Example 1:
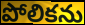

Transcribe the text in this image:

పోలికను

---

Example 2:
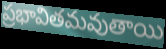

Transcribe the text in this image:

ప్రభావితమవుతాయి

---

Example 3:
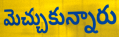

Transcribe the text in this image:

మెచ్చుకున్నారు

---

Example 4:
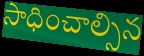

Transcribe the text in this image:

సాధించాల్సిన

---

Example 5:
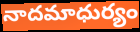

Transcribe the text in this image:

నాదమాధుర్యం